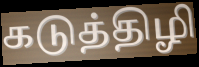
கடுத்திழி